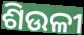
ଶିଉଳୀ